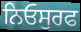
ਨਿਓਸੁਰਫ